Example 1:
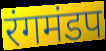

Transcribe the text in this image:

रंगमंडप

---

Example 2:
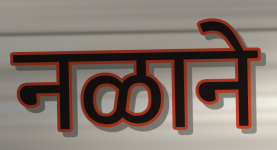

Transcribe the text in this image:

नळाने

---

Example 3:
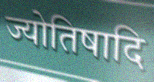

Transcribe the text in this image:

ज्योतिषादि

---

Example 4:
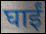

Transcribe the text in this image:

घाईं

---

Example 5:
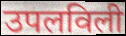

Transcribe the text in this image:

उपलविली